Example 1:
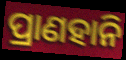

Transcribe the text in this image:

ପ୍ରାଣହାନି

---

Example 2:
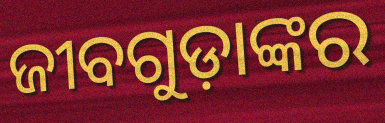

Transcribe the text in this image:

ଜୀବଗୁଡ଼ାଙ୍କର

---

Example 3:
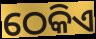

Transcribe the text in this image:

ଠେକିଏ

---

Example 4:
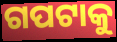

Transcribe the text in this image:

ଗପଟାକୁ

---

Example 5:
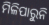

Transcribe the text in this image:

ମିଳିପାରୁନି